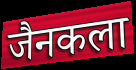
जैनकला